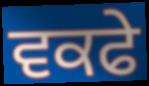
ਵਕਫੇ